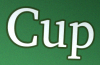
Cup